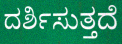
ದರ್ಶಿಸುತ್ತದೆ